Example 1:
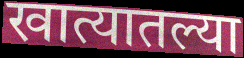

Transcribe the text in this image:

खात्यातल्या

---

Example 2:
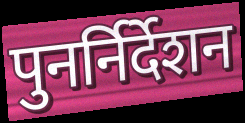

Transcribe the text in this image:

पुनर्निर्देशन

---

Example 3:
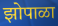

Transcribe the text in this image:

झोपाळा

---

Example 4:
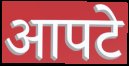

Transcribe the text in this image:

आपटे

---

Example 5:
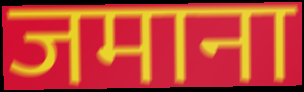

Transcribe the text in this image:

जमाना